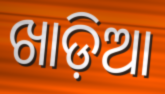
ଖାଡ଼ିଆ